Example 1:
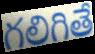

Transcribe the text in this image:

గలిగితే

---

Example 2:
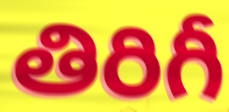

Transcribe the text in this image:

తిరిగీ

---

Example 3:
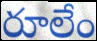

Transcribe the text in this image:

రూలేం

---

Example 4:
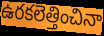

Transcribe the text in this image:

ఉరకలెత్తించినా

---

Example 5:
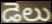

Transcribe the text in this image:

డెలు